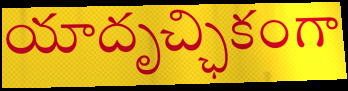
యాదృచ్ఛికంగా